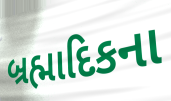
બ્રહ્માદિકના